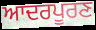
ਆਦਰਪੂਰਣ